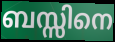
ബസ്സിനെ